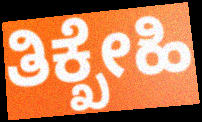
ತಿಕ್ಖೇಹಿ